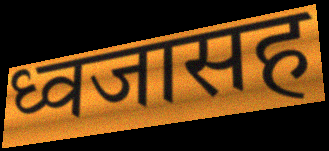
ध्वजासह